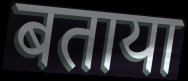
बताया